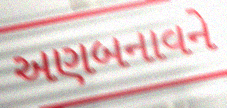
અણબનાવને